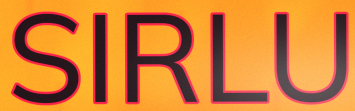
SIRLU